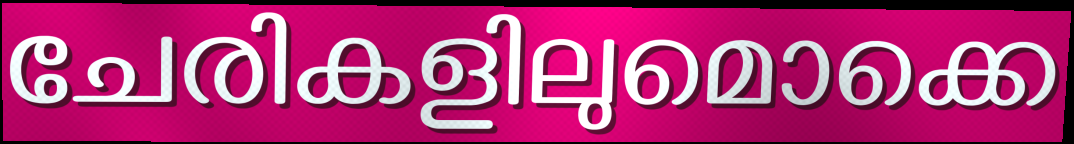
ചേരികളിലുമൊക്കെ